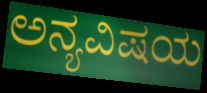
ಅನ್ಯವಿಷಯ